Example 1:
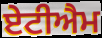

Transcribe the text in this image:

ਏਟੀਐਮ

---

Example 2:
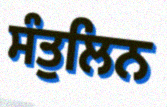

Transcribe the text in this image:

ਸੰਤੁਲਿਨ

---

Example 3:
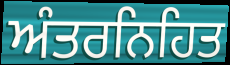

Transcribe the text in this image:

ਅੰਤਰਨਿਹਿਤ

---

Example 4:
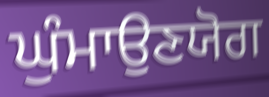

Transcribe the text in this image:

ਘੁੰਮਾਉਣਯੋਗ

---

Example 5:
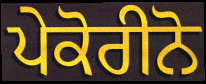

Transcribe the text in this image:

ਪੇਕੋਰੀਨੋ